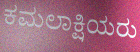
ಕಮಲಾಕ್ಷಿಯರು